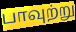
பாவுற்று